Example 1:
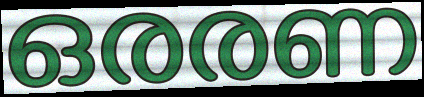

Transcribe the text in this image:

ഒരരണ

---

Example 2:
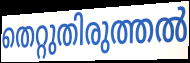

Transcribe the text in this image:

തെറ്റുതിരുത്തൽ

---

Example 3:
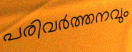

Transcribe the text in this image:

പരിവർത്തനവും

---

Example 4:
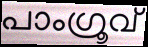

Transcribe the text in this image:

പാംഗ്രൂവ്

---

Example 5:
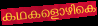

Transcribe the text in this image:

കഥകളൊഴികെ